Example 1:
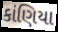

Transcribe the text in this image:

કાંણિયા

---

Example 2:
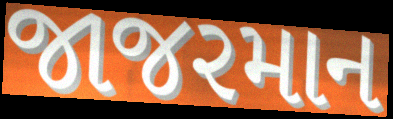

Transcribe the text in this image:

જાજરમાન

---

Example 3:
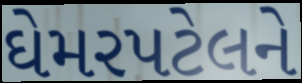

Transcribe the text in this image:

ઘેમરપટેલને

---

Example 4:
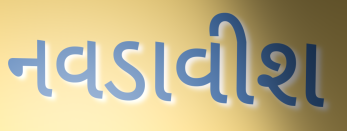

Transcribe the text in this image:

નવડાવીશ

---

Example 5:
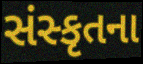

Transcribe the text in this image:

સંસ્કૃતના